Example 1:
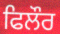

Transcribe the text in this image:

ਫਿਲੌਰ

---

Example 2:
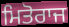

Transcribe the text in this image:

ਮਿਤੋਰਾਜ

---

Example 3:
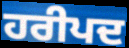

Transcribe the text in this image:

ਹਰੀਪਦ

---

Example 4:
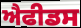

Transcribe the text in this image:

ਐਫੀਡਸ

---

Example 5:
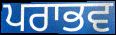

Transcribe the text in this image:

ਪਰਾਭਵ